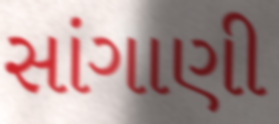
સાંગાણી